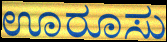
ಊರೂಸು